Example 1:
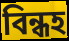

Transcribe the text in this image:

বিন্ধহ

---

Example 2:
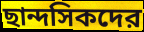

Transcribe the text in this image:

ছান্দসিকদের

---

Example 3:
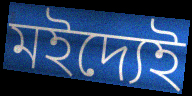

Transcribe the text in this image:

মইদ্যেই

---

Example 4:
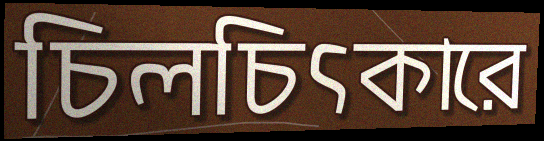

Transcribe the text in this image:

চিলচিৎকারে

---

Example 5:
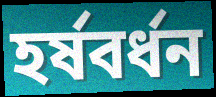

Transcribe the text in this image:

হর্ষবর্ধন